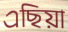
এছিয়া